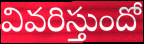
వివరిస్తుందో